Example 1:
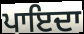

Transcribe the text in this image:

ਪਾਇਦਾ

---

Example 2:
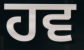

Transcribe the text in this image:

ਹਵ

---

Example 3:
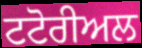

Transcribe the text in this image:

ਟਟੋਰੀਅਲ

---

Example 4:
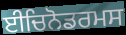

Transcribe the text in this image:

ਈਚਿਨੋਡਰਮਸ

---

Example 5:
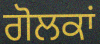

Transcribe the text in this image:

ਗੋਲਕਾਂ